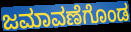
ಜಮಾವಣೆಗೊಂಡ